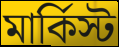
মার্কিস্ট